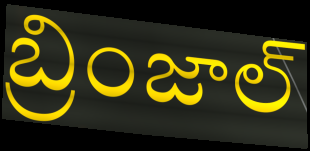
బ్రింజాల్